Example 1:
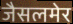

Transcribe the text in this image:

जैसलमेर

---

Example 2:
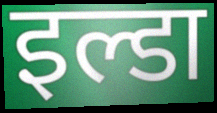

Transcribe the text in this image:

इल्डा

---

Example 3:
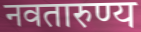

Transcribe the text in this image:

नवतारुण्य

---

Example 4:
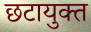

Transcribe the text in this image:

छटायुक्त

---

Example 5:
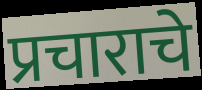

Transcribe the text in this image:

प्रचाराचे